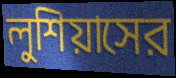
লুশিয়াসের